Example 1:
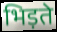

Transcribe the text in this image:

भिड़ते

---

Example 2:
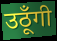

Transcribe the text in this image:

उठूँगी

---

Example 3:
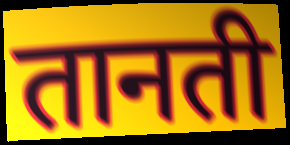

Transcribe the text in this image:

तानती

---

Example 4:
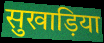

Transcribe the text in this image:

सुखाड़िया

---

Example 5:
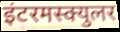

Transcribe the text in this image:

इंटरमस्क्युलर